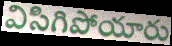
విసిగిపోయారు